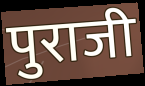
पुराजी